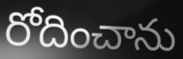
రోదించాను